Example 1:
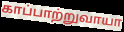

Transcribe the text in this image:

காப்பாற்றுவாயா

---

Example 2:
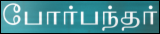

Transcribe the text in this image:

போர்பந்தர்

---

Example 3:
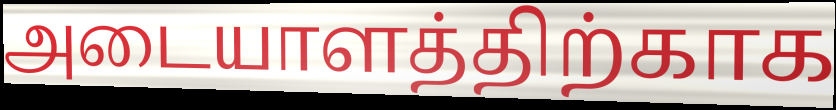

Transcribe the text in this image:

அடையாளத்திற்காக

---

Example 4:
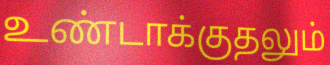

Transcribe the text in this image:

உண்டாக்குதலும்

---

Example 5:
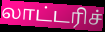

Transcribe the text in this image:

லாட்டரிச்